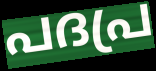
പദപ്ര